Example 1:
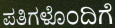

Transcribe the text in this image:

ಪತಿಗಳೊಂದಿಗೆ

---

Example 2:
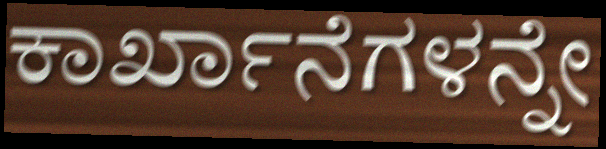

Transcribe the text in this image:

ಕಾರ್ಖಾನೆಗಳನ್ನೇ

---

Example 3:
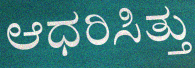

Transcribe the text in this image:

ಆಧರಿಸಿತ್ತು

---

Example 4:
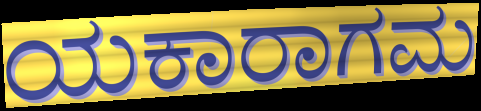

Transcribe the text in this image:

ಯಕಾರಾಗಮ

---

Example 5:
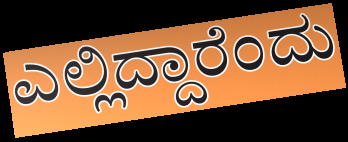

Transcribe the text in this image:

ಎಲ್ಲಿದ್ದಾರೆಂದು